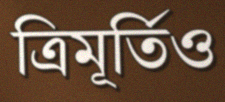
ত্ৰিমূৰ্তিও